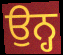
ਉਨ੍ਹ੍ਹ